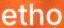
etho